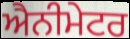
ਐਨੀਮੇਟਰ